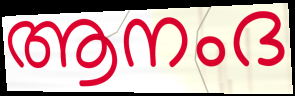
ആനംദ